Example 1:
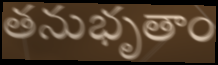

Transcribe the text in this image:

తనుభృతాం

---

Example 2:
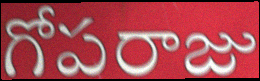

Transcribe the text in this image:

గోపరాజు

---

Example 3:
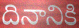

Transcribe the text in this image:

దినానికి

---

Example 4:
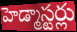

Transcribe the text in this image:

హెడ్మాస్టర్లు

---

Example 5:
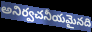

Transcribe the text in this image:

అనిర్వచనీయమైనది